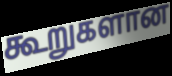
கூறுகளான